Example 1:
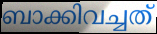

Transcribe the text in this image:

ബാക്കിവച്ചത്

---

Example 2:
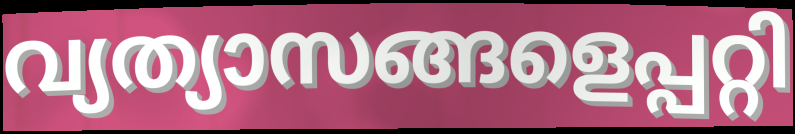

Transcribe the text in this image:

വ്യത്യാസങ്ങളെപ്പറ്റി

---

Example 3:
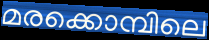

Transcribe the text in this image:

മരക്കൊമ്പിലെ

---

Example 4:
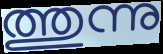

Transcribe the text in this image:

ത്തുന്നു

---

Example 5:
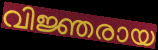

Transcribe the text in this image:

വിജ്ഞരായ